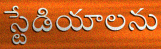
స్టేడియాలను